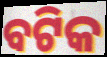
ବଟିକ